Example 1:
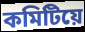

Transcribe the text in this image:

কমিটিয়ে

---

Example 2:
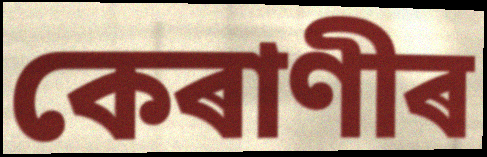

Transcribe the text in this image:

কেৰাণীৰ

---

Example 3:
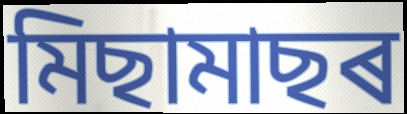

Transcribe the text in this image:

মিছামাছৰ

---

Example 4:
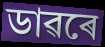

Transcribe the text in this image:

ডাৱৰে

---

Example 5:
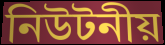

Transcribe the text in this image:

নিউটনীয়